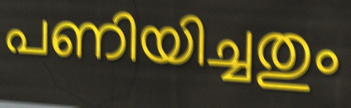
പണിയിച്ചതും